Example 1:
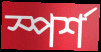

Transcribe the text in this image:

স্পৰ্শ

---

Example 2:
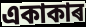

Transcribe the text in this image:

একাকাৰ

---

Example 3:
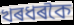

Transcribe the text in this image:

খৰধৰকৈ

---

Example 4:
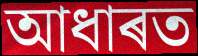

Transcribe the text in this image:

আধাৰত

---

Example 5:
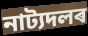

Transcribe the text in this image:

নাট্যদলৰ